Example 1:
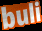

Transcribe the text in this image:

buli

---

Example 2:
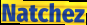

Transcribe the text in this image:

Natchez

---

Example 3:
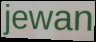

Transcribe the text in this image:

jewan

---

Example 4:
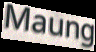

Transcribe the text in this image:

Maung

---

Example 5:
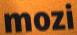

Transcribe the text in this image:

mozi